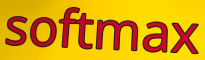
softmax